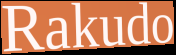
Rakudo